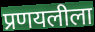
प्रणयलीला